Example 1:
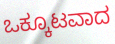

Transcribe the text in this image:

ಒಕ್ಕೂಟವಾದ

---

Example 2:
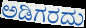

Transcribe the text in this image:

ಅಡಿಗರದು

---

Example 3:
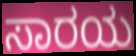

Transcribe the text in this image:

ಸಾರಯ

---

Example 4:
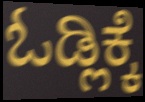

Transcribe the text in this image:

ಓಡ್ಲಿಕ್ಕೆ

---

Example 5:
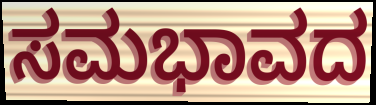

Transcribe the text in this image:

ಸಮಭಾವದ